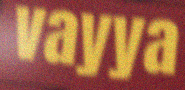
vayya